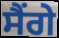
ਸੈਂਗੇ